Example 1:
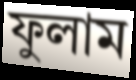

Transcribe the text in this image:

ফুলাম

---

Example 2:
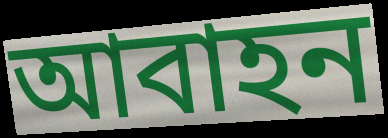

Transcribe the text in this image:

আবাহন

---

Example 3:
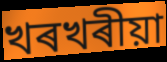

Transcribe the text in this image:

খৰখৰীয়া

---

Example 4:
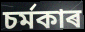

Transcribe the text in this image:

চৰ্মকাৰ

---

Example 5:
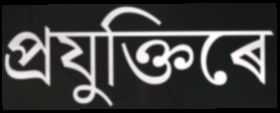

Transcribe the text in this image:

প্ৰযুক্তিৰে